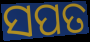
ସପତ